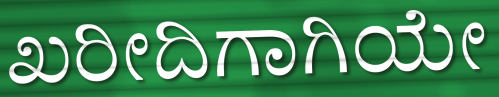
ಖರೀದಿಗಾಗಿಯೇ